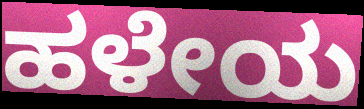
ಹಳೇಯ